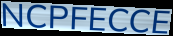
NCPFECCE